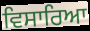
ਵਿਸਾਰਿਆ